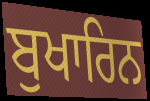
ਬੁਖਾਰਿਨ